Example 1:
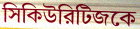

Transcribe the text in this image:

সিকিউরিটিজকে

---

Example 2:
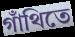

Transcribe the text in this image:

গাঁথিতে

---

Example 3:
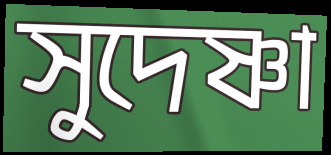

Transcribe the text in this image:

সুদেষ্ণা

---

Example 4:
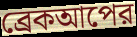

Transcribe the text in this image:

ব্রেকআপের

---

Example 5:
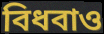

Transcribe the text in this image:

বিধবাও